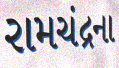
રામચંદ્રના